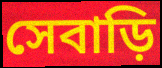
সেবাড়ি